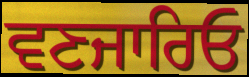
ਵਣਜਾਰਿਓ